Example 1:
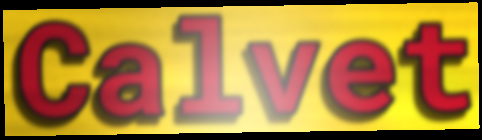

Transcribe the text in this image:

Calvet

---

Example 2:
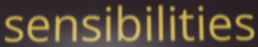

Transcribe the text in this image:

sensibilities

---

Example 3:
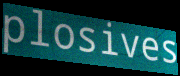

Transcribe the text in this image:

plosives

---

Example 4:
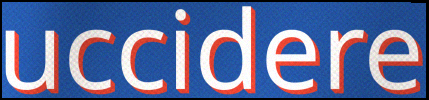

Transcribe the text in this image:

uccidere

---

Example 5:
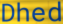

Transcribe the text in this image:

Dhed